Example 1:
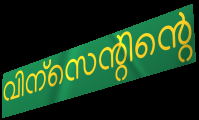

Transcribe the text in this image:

വിന്സെന്റിന്റെ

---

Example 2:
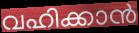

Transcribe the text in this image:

വഹിക്കാൻ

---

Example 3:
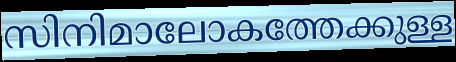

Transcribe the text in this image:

സിനിമാലോകത്തേക്കുള്ള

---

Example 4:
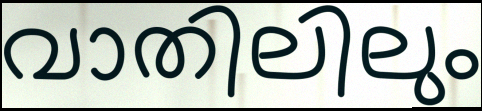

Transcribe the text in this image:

വാതിലിലും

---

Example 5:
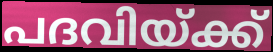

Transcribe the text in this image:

പദവിയ്ക്ക്